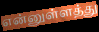
என்னுள்ளத்து